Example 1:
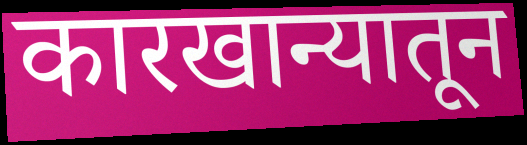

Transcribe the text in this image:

कारखान्यातून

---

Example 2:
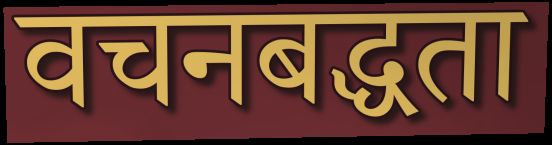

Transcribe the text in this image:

वचनबद्धता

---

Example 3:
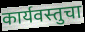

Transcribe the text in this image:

कार्यवस्तुचा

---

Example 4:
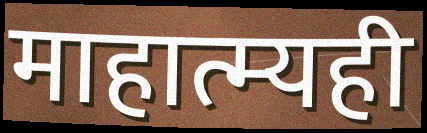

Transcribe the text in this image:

माहात्म्यही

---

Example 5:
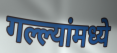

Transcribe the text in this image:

गल्ल्यांमध्ये